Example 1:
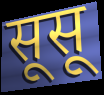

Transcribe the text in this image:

सूसू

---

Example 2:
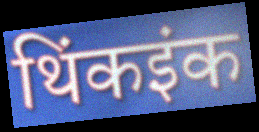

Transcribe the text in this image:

थिंकइंक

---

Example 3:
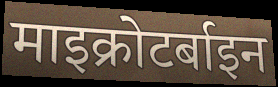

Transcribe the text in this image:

माइक्रोटर्बाइन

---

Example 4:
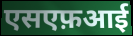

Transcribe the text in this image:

एसएफ़आई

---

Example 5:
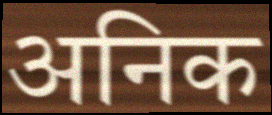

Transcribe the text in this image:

अनिक